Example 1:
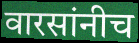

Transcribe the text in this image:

वारसांनीच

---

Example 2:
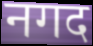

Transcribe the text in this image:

नगद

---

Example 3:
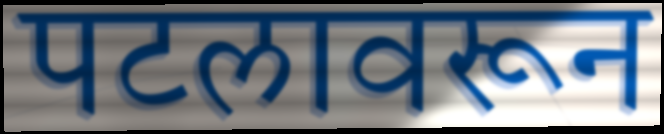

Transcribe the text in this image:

पटलावरून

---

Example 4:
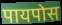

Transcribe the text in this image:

पायपोस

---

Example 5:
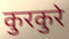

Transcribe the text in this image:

कुरकुरे